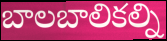
బాలబాలికల్ని